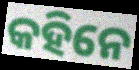
କହିନେ